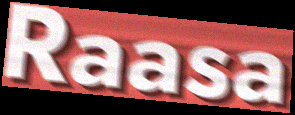
Raasa